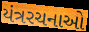
યંત્રરચનાઓ